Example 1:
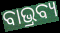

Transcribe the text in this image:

ବାଭ୍ରବ୍ୟ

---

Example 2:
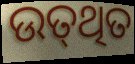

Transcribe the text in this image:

ଉତ୍‌ଥିତ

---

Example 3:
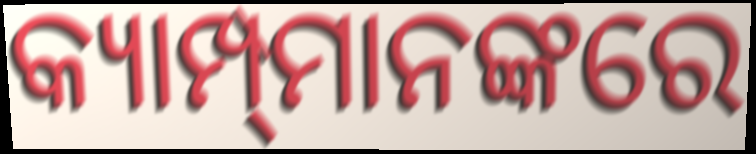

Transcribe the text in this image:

କ୍ୟାମ୍ପ୍‍ମାନଙ୍କରେ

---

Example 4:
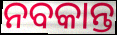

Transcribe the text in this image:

ନବକାନ୍ତ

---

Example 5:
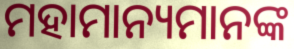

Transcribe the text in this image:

ମହାମାନ୍ୟମାନଙ୍କ